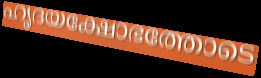
ഹൃദയക്ഷോഭത്തോടെ